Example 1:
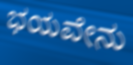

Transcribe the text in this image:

ಭಯವೇನು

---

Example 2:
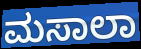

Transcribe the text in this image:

ಮಸಾಲಾ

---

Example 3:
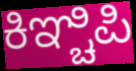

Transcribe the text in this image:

ಕಿಞ್ಚಿಪಿ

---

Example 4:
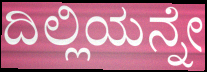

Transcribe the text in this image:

ದಿಲ್ಲಿಯನ್ನೇ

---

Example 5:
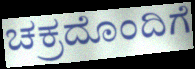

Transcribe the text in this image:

ಚಕ್ರದೊಂದಿಗೆ